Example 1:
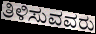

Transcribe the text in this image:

ತಿಳಿಸುವವರು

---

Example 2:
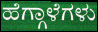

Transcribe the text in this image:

ಹೆಗ್ಗಾಳೆಗಳು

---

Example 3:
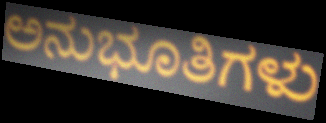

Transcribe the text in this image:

ಅನುಭೂತಿಗಳು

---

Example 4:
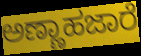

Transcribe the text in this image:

ಅಣ್ಣಾಹಜಾರೆ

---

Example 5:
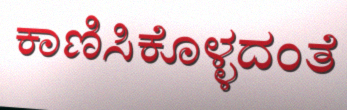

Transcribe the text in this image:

ಕಾಣಿಸಿಕೊಳ್ಳದಂತೆ